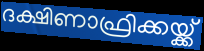
ദക്ഷിണാഫ്രിക്കയ്ക്ക്